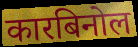
कारबिनोल